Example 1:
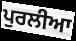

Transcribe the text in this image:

ਪੁਰਲੀਆ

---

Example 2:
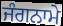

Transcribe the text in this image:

ਜੰਗਨਾਮੇ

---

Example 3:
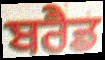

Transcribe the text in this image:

ਬਰੈਡ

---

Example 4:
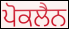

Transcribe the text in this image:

ਪੋਕਲੈਨ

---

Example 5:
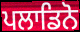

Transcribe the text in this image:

ਪਲਾਡਿਨੋ